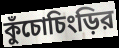
কুঁচোচিংড়ির